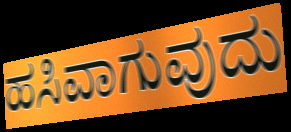
ಹಸಿವಾಗುವುದು